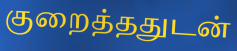
குறைத்ததுடன்